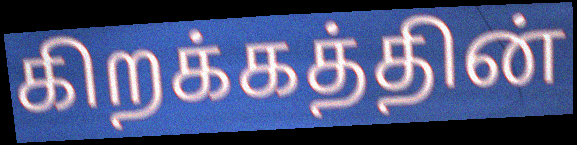
கிறக்கத்தின்